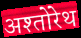
अश्तोरेथ